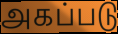
அகப்படு